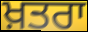
ਖ਼ਤਰਾ